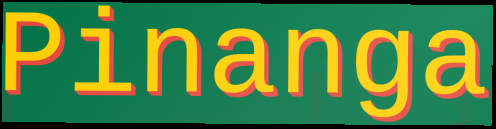
Pinanga